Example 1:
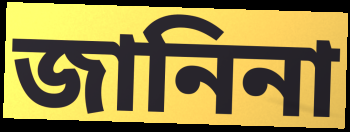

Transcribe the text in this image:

জানিনা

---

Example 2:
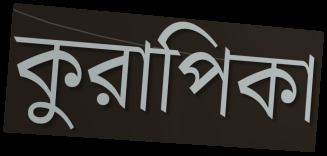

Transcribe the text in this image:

কুরাপিকা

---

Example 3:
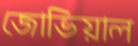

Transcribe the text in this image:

জোভিয়াল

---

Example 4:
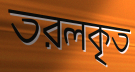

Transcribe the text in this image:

তরলকৃত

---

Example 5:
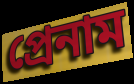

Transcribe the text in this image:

প্রেনাম